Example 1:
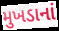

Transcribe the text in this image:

મુખડાનાં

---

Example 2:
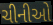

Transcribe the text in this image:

ચીનીઓ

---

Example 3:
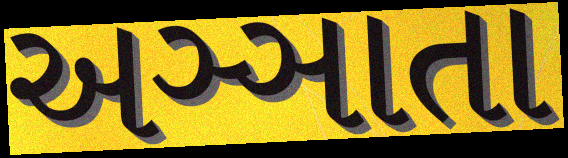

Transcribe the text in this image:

અઞ્ઞાતા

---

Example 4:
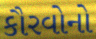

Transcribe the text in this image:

કૌરવોનો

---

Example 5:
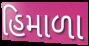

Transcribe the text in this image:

હિમાળા